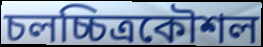
চলচ্চিত্রকৌশল